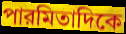
পারমিতাদিকে